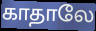
காதாலே